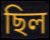
ছিল